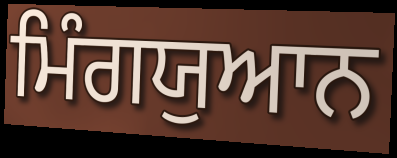
ਮਿੰਗਯੁਆਨ